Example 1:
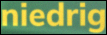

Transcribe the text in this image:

niedrig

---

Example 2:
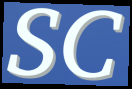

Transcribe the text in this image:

SC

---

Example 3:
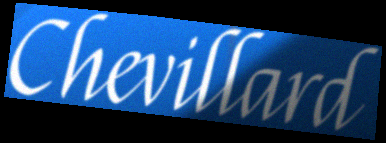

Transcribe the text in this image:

Chevillard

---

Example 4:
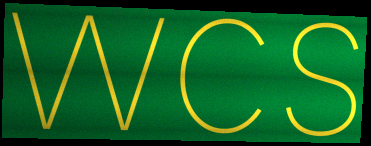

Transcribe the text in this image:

wcs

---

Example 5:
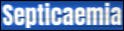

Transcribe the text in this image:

Septicaemia